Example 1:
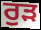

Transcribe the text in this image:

ਰੁੜ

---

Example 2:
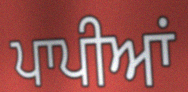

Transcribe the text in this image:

ਪਾਪੀਆਂ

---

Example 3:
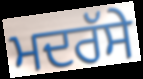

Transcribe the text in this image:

ਮਦਰੱਸੇ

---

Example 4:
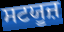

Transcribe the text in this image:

ਸਟਯੂਜ਼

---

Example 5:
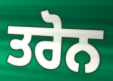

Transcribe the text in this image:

ਤਰੋਨ